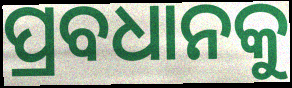
ପ୍ରବଧାନକୁ